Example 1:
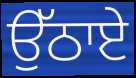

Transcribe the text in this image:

ਉੱਠਾਏ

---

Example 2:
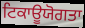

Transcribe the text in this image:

ਟਿਕਾਊਯੋਗਤਾ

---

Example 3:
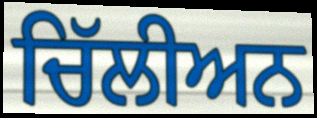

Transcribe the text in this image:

ਚਿੱਲੀਅਨ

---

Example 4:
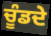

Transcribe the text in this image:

ਚੂੰਡਦੇ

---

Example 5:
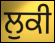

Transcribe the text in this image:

ਲੁਕੀ